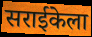
सराईकेला